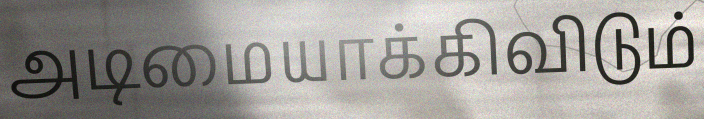
அடிமையாக்கிவிடும்